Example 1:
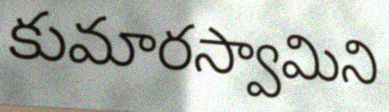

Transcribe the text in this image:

కుమారస్వామిని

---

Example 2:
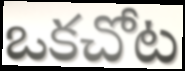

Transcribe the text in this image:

ఒకచోట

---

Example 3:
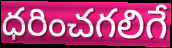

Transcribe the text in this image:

ధరించగలిగే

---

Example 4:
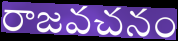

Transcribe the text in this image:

రాజవచనం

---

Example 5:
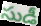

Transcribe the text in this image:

సుడీ